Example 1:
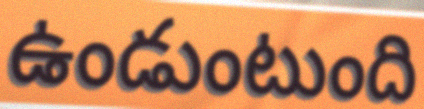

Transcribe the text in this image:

ఉండుంటుంది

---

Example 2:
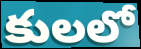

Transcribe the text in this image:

కులలో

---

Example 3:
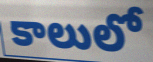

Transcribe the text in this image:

కాలులో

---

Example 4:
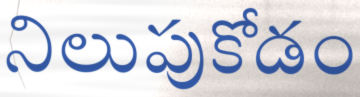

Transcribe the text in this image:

నిలుపుకోడం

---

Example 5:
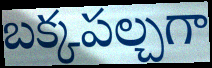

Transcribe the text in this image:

బక్కపల్చగా